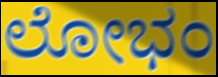
ಲೋಭಂ